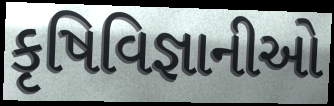
કૃષિવિજ્ઞાનીઓ